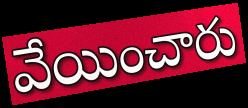
వేయించారు